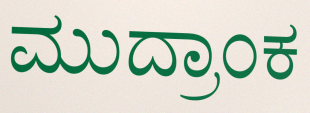
ಮುದ್ರಾಂಕ